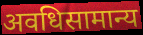
अवधिसामान्य